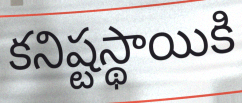
కనిష్టస్థాయికి